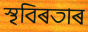
স্থবিৰতাৰ